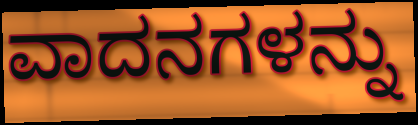
ವಾದನಗಳನ್ನು